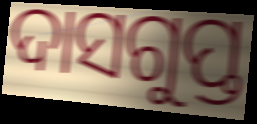
ଦାସଗୁପ୍ତ